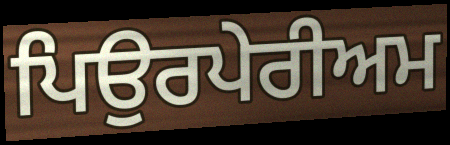
ਪਿਉਰਪੇਰੀਅਮ